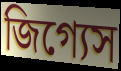
জিগ্যেস